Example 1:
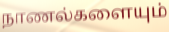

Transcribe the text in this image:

நாணல்களையும்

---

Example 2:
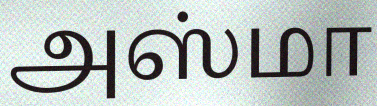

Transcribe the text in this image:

அஸ்மா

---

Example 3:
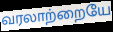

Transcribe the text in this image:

வரலாற்றையே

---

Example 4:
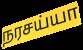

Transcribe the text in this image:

நரசய்யா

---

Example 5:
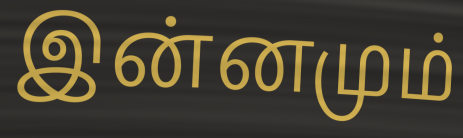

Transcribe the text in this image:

இன்னமும்